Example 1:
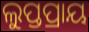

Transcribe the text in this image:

ଲୁପ୍ତପ୍ରାୟ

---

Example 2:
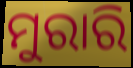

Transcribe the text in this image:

ମୁରାରି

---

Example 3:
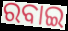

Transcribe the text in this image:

ରବାଇ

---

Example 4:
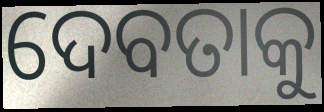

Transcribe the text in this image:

ଦେବତାକୁ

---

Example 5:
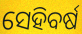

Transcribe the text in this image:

ସେହିବର୍ଷ